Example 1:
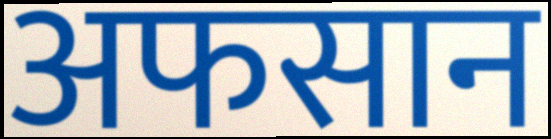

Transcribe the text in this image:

अफसान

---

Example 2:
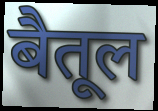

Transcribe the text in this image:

बैतूल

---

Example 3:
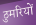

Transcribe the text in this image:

ठुमरियों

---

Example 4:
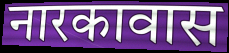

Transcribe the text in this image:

नारकावास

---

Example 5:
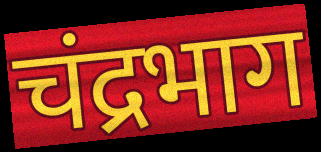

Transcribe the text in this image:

चंद्रभाग